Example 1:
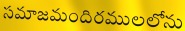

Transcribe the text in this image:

సమాజమందిరములలోను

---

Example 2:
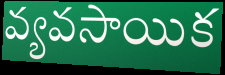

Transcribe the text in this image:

వ్యవసాయిక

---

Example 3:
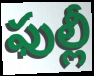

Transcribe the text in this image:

ఫుల్లీ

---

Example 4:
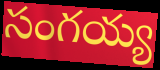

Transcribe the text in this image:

సంగయ్య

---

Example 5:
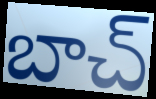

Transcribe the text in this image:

బాచ్